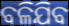
ବଳିଯିବ